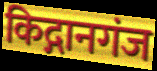
किद्गानगंज